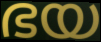
ഭയ